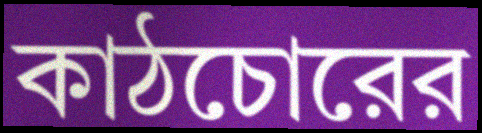
কাঠচোরের